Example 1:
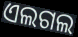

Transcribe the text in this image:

ଏଲଗଲ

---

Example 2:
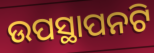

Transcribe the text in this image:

ଉପସ୍ଥାପନଟି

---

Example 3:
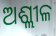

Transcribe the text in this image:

ଅଶ୍ଲୀଳ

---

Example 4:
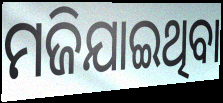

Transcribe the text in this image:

ମଜିଯାଇଥିବା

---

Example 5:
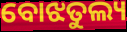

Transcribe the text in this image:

ବୋଝତୁଲ୍ୟ